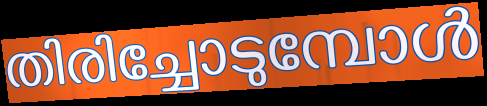
തിരിച്ചോടുമ്പോൾ